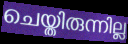
ചെയ്തിരുന്നില്ല